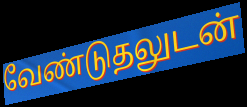
வேண்டுதலுடன்